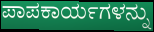
ಪಾಪಕಾರ್ಯಗಳನ್ನು